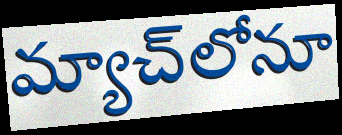
మ్యాచ్‌లోనూ